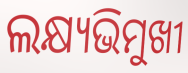
ଲକ୍ଷ୍ୟଭିମୁଖୀ